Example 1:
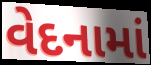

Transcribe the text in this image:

વેદનામાં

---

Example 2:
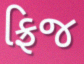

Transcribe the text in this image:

ફ્રિજ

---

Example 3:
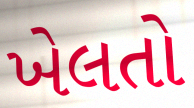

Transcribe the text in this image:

ખેલતો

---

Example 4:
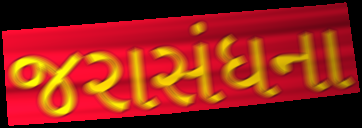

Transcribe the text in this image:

જરાસંધના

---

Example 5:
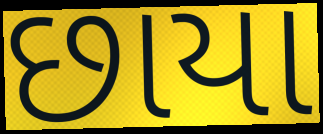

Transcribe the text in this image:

છાયા